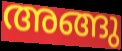
അങ്ങു